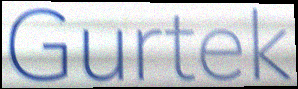
Gurtek